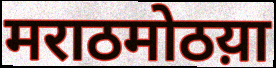
मराठमोठय़ा